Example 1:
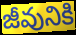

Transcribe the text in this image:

జీవునికి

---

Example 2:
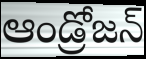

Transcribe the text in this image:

ఆండ్రోజన్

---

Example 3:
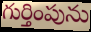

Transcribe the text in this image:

గుర్తింపును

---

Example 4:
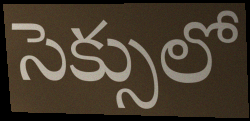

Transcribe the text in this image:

సెక్సులో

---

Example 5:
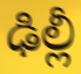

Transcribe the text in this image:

ఢిల్లీ